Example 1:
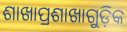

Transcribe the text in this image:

ଶାଖାପ୍ରଶାଖାଗୁଡ଼ିକ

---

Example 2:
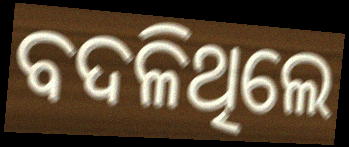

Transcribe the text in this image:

ବଦଳିଥିଲେ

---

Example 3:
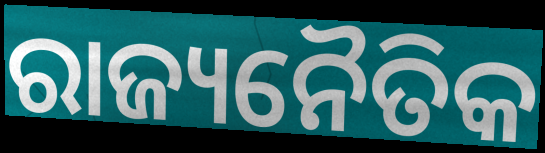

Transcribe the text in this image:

ରାଜ୍ୟନୈତିକ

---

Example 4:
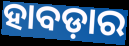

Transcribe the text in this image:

ହାବଡ଼ାର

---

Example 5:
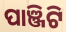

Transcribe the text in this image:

ପାଞ୍ଜିଟି